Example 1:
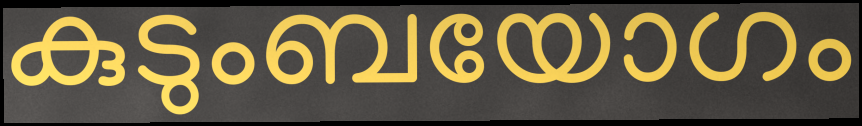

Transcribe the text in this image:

കുടുംബയോഗം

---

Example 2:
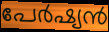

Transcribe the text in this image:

പേർഷ്യൻ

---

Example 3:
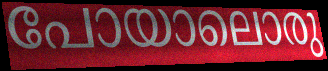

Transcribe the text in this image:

പോയാലൊരു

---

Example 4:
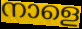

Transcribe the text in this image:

നാളെ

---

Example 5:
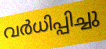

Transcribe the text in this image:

വർധിപ്പിച്ചു